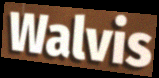
Walvis